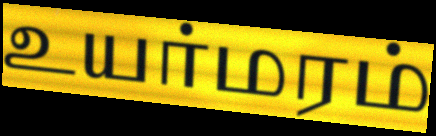
உயர்மரம்